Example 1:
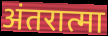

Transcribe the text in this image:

अंतरात्मा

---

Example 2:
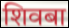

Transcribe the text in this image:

शिवबा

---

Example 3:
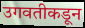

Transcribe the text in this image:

उगवतीकडून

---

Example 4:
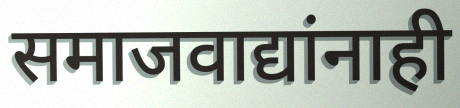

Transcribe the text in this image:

समाजवाद्यांनाही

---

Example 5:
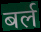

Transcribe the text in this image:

बर्ल